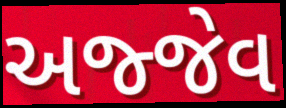
અજ્જેવ